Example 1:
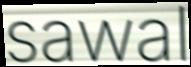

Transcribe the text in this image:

sawal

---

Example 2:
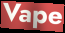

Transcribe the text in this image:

Vape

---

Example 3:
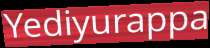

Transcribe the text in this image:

Yediyurappa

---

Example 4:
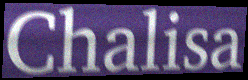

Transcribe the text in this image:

Chalisa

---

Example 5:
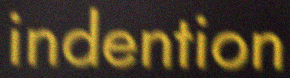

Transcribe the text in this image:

indention